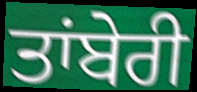
ਤਾਂਬੇਰੀ